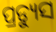
ପ୍ରଡ୍ୟୁସ